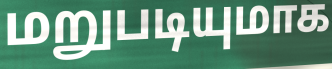
மறுபடியுமாக